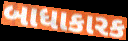
બાધાકારક